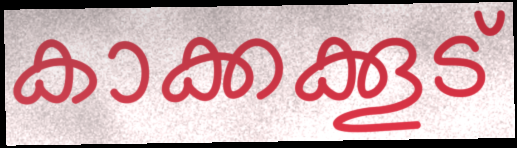
കാക്കക്കൂട്